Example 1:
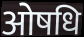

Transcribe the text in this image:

ओषधि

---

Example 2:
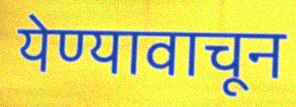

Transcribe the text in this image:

येण्यावाचून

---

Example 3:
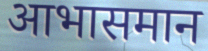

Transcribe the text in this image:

आभासमान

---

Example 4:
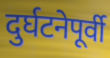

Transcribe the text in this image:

दुर्घटनेपूर्वी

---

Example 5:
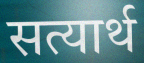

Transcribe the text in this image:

सत्यार्थ